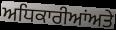
ਅਧਿਕਾਰੀਆਂਅਤੇ